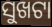
ସୁଖଟା